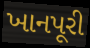
ખાનપૂરી